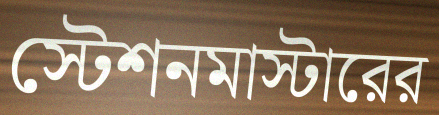
স্টেশনমাস্টারের